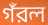
গঁরল